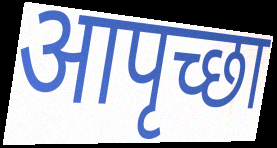
आपृच्छा